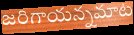
జరిగాయన్నమాట